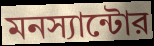
মনস্যান্টোর